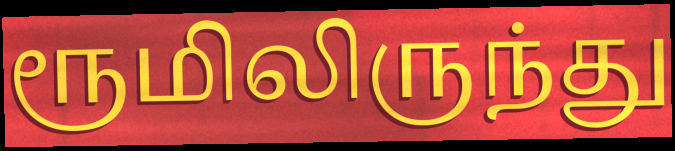
ரூமிலிருந்து